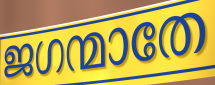
ജഗന്മാതേ